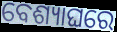
ବେଶ୍ୟାଘରେ